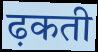
ढ़कती